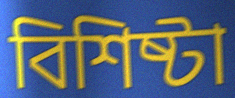
বিশিষ্টা